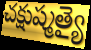
చక్షుష్మత్యై